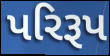
પરિરૂપ